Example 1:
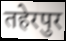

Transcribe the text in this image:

तहेरपुर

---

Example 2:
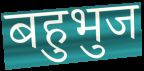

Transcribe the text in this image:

बहुभुज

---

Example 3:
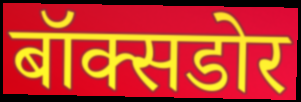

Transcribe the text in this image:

बॉक्सडोर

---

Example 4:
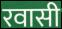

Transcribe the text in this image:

रवासी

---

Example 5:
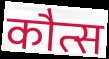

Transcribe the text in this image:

कौत्स